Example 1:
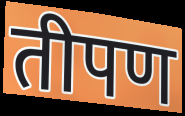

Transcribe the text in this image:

तीपण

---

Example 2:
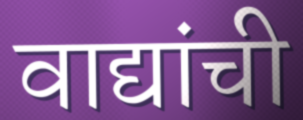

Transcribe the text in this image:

वाद्यांची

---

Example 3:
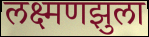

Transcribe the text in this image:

लक्ष्मणझुला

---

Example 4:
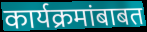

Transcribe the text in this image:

कार्यक्रमांबाबत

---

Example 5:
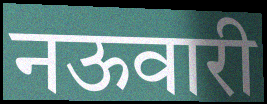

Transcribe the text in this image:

नऊवारी